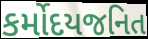
કર્મોદયજનિત